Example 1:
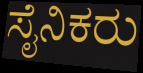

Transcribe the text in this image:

ಸೈನಿಕರು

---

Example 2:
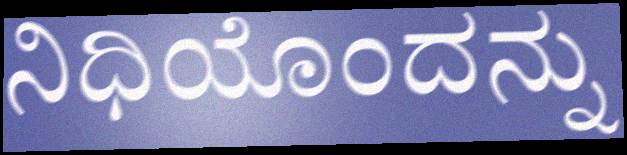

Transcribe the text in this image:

ನಿಧಿಯೊಂದನ್ನು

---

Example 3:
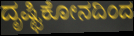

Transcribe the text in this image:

ದೃಷ್ಟಿಕೋನದಿಂದ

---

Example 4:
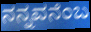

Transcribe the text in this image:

ನನ್ನವನೆಂಬ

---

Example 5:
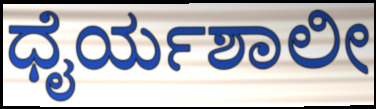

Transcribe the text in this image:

ಧೈರ್ಯಶಾಲೀ